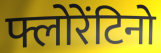
फ्लोरेंटिनो